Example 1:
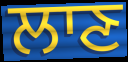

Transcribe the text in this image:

ਲਾਣ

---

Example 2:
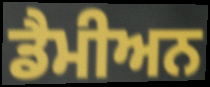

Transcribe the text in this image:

ਡੈਮੀਅਨ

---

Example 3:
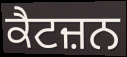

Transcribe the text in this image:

ਕੈਟਜ਼ਨ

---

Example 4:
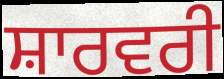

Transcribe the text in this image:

ਸ਼ਾਰਵਰੀ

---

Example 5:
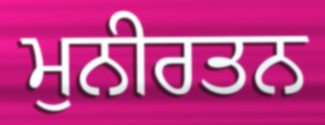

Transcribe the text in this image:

ਮੁਨੀਰਤਨ